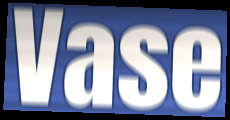
Vase